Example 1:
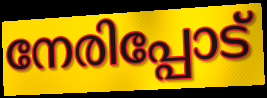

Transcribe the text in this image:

നേരിപ്പോട്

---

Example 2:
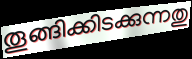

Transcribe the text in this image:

തൂങ്ങിക്കിടക്കുന്നതു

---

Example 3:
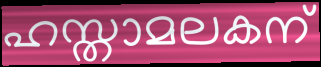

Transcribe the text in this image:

ഹസ്താമലകന്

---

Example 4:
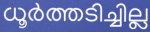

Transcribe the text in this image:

ധൂർത്തടിച്ചില്ല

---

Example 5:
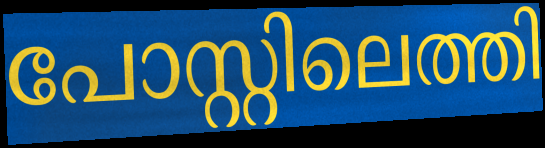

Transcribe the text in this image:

പോസ്റ്റിലെത്തി